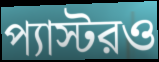
প্যাস্টরও